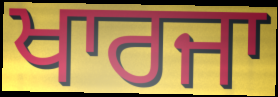
ਖਾਰਜਾ